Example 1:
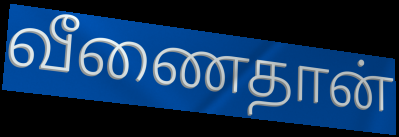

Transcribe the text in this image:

வீணைதான்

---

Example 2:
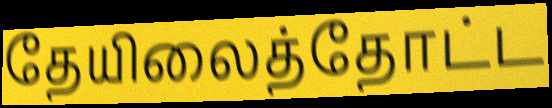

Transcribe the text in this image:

தேயிலைத்தோட்ட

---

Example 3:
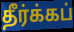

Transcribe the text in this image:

தீர்க்கப்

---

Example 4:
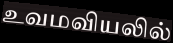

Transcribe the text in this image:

உவமவியலில்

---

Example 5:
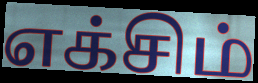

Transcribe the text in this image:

எக்சிம்